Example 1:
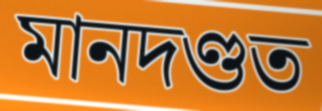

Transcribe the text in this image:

মানদণ্ডত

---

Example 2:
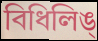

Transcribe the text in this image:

বিধিলিঙ্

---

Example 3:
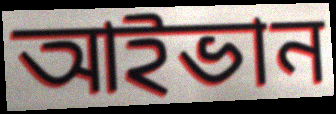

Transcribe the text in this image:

আইভান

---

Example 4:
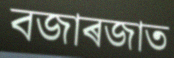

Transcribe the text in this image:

বজাৰজাত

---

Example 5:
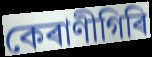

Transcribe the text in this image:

কেৰাণীগিৰি